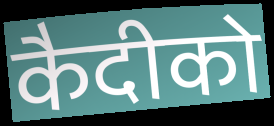
कैदीको